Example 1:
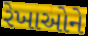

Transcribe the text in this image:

રેખાઓને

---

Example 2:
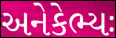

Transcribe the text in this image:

અનેકેભ્યઃ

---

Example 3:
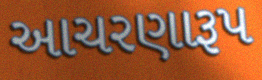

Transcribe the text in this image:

આચરણારૂપ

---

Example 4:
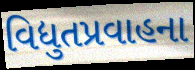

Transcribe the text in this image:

વિદ્યુતપ્રવાહના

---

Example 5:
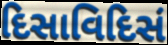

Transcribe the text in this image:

દિસાવિદિસં